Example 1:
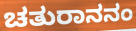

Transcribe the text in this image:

ಚತುರಾನನಂ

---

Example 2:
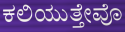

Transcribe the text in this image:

ಕಲಿಯುತ್ತೇವೊ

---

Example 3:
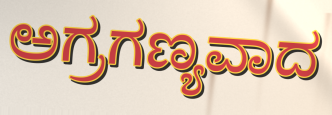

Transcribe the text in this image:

ಅಗ್ರಗಣ್ಯವಾದ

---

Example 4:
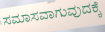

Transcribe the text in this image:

ಸಮಾಸವಾಗುವುದಕ್ಕೆ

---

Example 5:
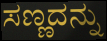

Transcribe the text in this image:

ಸಣ್ಣದನ್ನು